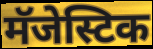
मॅजेस्टिक